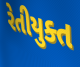
રેતીયુક્ત